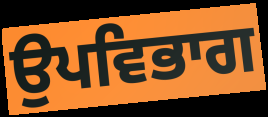
ਉਪਵਿਭਾਗ